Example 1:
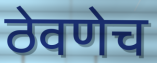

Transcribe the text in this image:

ठेवणेच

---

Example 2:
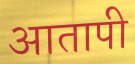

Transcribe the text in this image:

आतापी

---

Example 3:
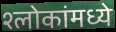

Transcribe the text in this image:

श्लोकांमध्ये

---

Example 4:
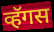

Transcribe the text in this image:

व्हॅगस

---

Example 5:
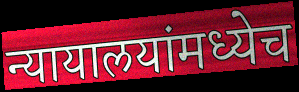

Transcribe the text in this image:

न्यायालयांमध्येच